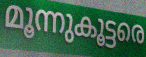
മൂന്നുകൂട്ടരെ